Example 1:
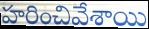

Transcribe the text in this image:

హరించివేశాయి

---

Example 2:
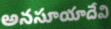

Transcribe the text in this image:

అనసూయాదేవి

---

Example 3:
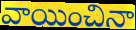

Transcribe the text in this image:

వాయించినా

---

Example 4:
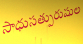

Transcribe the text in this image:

సాధుసత్పురుషుల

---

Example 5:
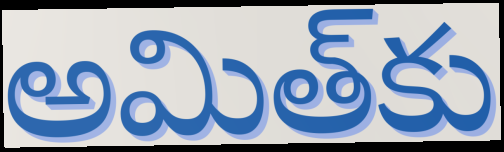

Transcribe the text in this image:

అమిత్‌కు